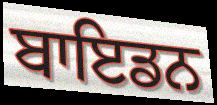
ਬਾਇਡਨ